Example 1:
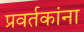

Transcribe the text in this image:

प्रवर्तकांना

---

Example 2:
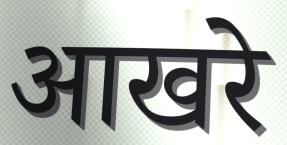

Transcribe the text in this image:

आखरे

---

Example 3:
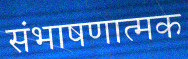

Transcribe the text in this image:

संभाषणात्मक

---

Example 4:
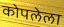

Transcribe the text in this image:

कोपलेला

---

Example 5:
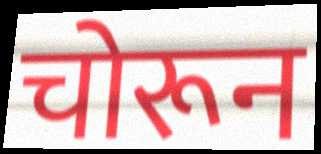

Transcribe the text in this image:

चोरून